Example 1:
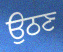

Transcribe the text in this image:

ਉਠਣ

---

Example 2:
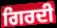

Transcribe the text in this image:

ਗਿਰਦੀ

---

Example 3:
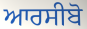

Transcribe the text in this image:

ਆਰਸੀਬੋ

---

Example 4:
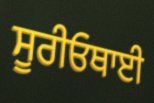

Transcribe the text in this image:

ਸੂਰੀਓਥਾਈ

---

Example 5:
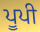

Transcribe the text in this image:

ਪੂਪੀ